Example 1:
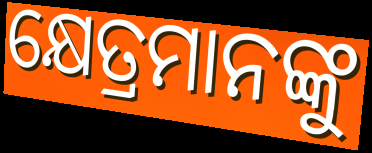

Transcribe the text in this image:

କ୍ଷେତ୍ରମାନଙ୍କୁ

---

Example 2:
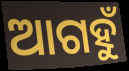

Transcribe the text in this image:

ଆଗହୁଁ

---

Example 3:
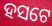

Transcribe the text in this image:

ହସଟେ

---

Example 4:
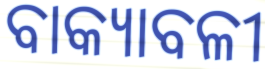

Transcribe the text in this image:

ବାକ୍ୟାବଳୀ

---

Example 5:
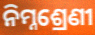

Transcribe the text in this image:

ନିମ୍ନଶ୍ରେଣୀ